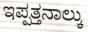
ಇಪ್ಪತ್ತನಾಲ್ಕು